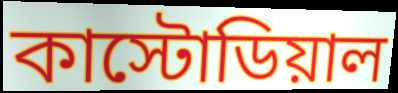
কাস্টোডিয়াল